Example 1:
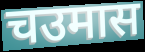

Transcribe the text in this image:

चउमास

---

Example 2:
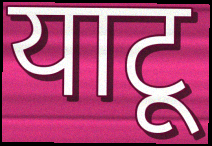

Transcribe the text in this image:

याटू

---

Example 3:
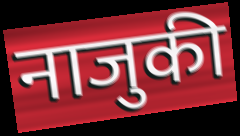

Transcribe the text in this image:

नाजुकी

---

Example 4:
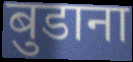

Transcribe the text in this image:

बुडाना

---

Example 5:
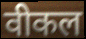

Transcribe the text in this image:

वीकल